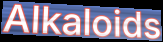
Alkaloids